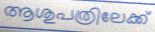
ആശുപത്രിലേക്ക്